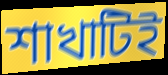
শাখাটিই